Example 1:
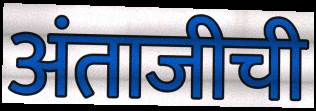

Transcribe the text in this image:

अंताजीची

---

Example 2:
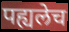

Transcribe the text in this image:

पह्यलेच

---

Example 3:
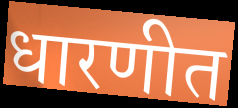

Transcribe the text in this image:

धारणीत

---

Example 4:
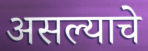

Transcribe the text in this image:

असल्‍याचे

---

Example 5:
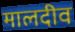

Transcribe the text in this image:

मालदीव